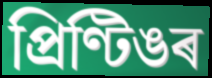
প্ৰিণ্টিঙৰ